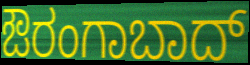
ಔರಂಗಾಬಾದ್